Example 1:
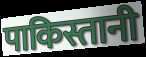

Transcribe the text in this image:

पाकिस्तानी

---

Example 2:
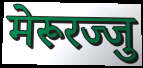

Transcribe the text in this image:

मेरूरज्जु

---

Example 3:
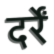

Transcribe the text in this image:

दर्रें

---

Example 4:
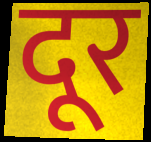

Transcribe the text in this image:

दूर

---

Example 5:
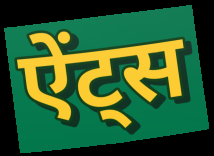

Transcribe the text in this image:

ऐंट्स